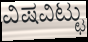
ವಿಷವಿಟ್ಟು